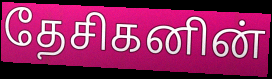
தேசிகனின்